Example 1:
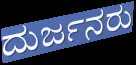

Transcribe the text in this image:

ದುರ್ಜನರು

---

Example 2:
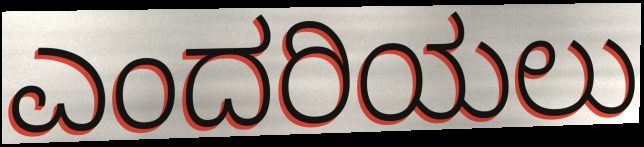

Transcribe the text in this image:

ಎಂದರಿಯಲು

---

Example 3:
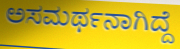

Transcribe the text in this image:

ಅಸಮರ್ಥನಾಗಿದ್ದೆ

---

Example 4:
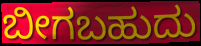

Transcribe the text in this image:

ಬೀಗಬಹುದು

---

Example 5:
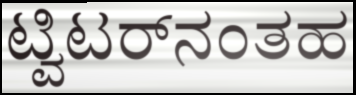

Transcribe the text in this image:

ಟ್ವಿಟರ್‌ನಂತಹ